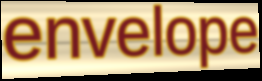
envelope